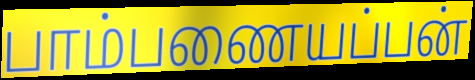
பாம்பணையப்பன்